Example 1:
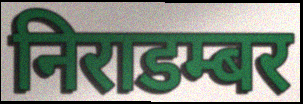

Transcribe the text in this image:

निराडम्बर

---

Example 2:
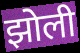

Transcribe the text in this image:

झोली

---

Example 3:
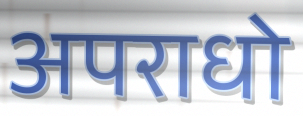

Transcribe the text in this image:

अपराधो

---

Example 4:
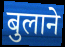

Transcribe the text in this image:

बुलाने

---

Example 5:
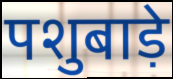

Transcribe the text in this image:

पशुबाड़े